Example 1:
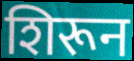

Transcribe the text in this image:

शिरून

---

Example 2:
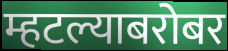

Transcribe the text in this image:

म्हटल्याबरोबर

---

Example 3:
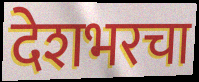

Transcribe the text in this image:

देशभरचा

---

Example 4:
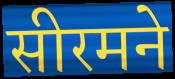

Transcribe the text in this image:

सीरमने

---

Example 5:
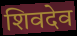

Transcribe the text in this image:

शिवदेव